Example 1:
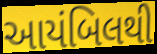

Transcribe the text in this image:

આયંબિલથી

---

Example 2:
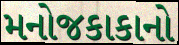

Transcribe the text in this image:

મનોજકાકાનો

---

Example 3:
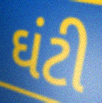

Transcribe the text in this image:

ઘંટી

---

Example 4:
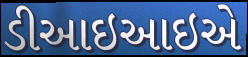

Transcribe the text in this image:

ડીઆઇઆઇએ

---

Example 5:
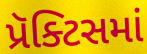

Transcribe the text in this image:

પ્રૅક્ટિસમાં